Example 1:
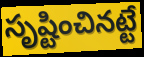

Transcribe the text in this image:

సృష్టించినట్టే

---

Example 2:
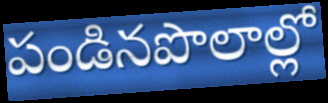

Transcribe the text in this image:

పండినపొలాల్లో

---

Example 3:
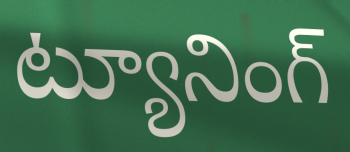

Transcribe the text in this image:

ట్యూనింగ్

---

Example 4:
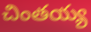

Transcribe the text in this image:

చింతయ్య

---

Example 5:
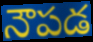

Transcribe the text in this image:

నౌపడ